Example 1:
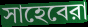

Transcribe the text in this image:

সাহেবেরা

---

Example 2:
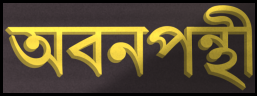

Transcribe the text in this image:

অবনপন্থী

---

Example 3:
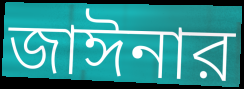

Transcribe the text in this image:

জাঈনার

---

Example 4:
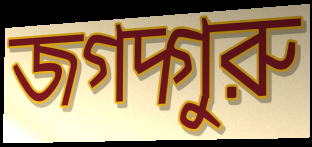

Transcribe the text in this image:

জগদ্গুরু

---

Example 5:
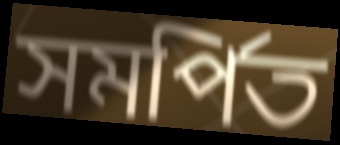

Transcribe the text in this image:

সমর্পিত